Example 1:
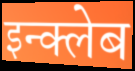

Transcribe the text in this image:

इन्क्लेब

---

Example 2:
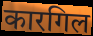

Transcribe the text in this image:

कारगिल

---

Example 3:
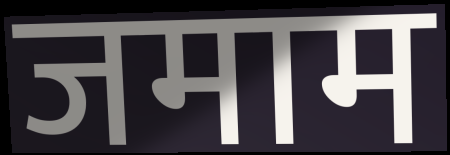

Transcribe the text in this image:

जमाम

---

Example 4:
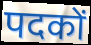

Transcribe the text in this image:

पदकों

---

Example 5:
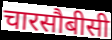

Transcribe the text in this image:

चारसौबीसी